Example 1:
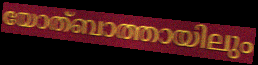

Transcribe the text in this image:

യോത്ബാത്തായിലും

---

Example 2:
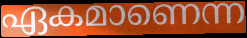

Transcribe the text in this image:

ഏകമാണെന്ന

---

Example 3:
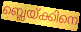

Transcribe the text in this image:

ബ്ലെയ്ക്കിനെ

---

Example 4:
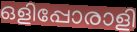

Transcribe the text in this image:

ഒളിപ്പോരാളി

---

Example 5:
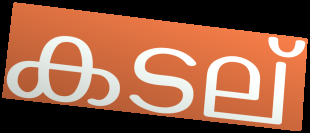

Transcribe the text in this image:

കടല്